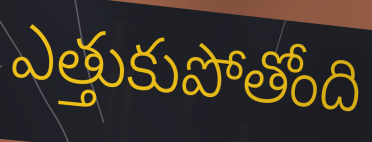
ఎత్తుకుపోతోంది